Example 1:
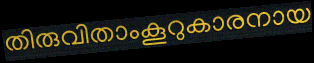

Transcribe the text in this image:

തിരുവിതാംകൂറുകാരനായ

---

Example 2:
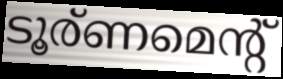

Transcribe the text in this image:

ടൂര്ണമെന്റ്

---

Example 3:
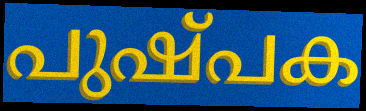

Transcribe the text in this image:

പുഷ്പക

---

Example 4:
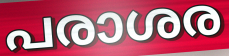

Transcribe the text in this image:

പരാശര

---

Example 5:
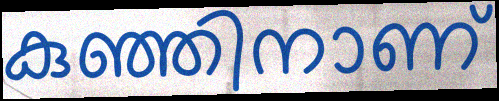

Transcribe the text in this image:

കുഞ്ഞിനാണ്